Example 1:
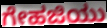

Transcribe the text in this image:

ಗೇಹಜಿಯು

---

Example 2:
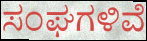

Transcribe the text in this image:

ಸಂಘಗಳಿವೆ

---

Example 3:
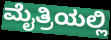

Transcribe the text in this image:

ಮೈತ್ರಿಯಲ್ಲಿ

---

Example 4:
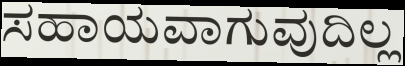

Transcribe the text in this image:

ಸಹಾಯವಾಗುವುದಿಲ್ಲ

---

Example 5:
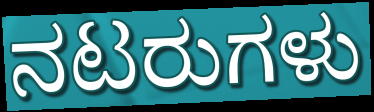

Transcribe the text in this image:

ನಟರುಗಳು